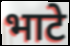
भाटे